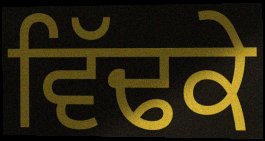
ਵਿੱਢਕੇ